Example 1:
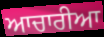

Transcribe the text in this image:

ਆਚਾਰੀਆ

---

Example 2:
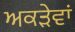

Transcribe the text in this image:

ਅਕੜੇਵਾਂ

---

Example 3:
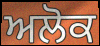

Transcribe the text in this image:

ਅਲੋਕ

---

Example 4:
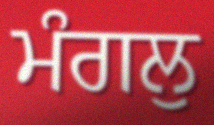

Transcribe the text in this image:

ਮੰਗਲੁ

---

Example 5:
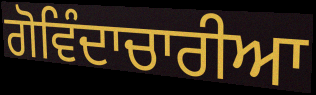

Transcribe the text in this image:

ਗੋਵਿੰਦਾਚਾਰੀਆ